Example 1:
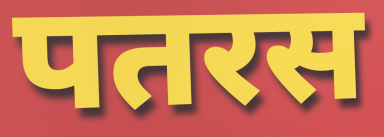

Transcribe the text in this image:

पतरस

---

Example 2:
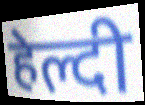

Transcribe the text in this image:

हेल्‍दी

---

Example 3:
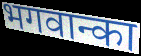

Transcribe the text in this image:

भगवान्का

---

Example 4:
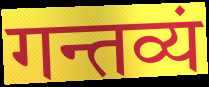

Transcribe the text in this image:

गन्तव्यं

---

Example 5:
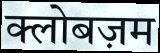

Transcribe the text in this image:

क्लोबज़म